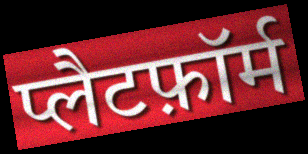
प्लैटफ़ॉर्म